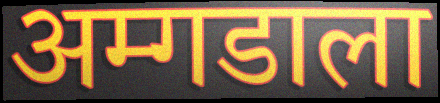
अम्गडाला